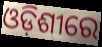
ଓଡ଼ିଶୀରେ